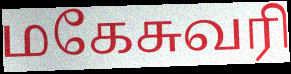
மகேசுவரி